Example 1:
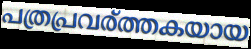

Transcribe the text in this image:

പത്രപ്രവര്ത്തകയായ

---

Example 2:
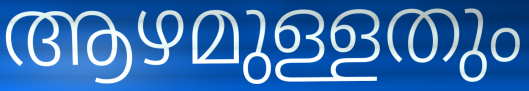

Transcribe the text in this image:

ആഴമുള്ളതും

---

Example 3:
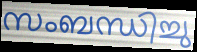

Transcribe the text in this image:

സംബന്ധിച്ചു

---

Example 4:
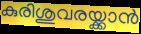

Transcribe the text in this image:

കുരിശുവരയ്ക്കാൻ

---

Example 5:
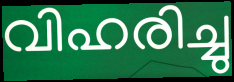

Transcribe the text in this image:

വിഹരിച്ചു